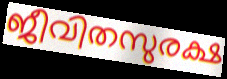
ജീവിതസുരക്ഷ